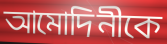
আমোদিনীকে